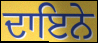
ਦਾਇਨੇ